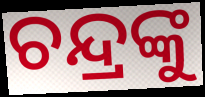
ଚନ୍ଦ୍ରଙ୍କୁ